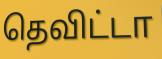
தெவிட்டா